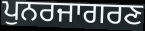
ਪੁਨਰਜਾਗਰਣ